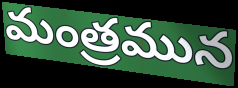
మంత్రమున